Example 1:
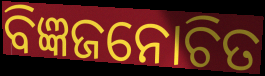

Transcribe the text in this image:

ବିଜ୍ଞଜନୋଚିତ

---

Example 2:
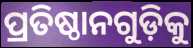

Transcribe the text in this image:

ପ୍ରତିଷ୍ଠାନଗୁଡ଼ିକୁ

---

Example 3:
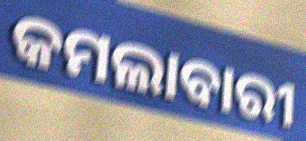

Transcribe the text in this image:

କମଲାବାରୀ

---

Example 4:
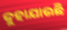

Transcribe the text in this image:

କୁହାଯାଉଛି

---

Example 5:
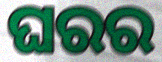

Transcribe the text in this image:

ଘରର